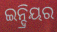
ଇନ୍ଦ୍ରିୟର